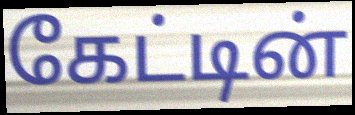
கேட்டின்